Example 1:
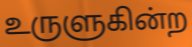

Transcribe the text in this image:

உருளுகின்ற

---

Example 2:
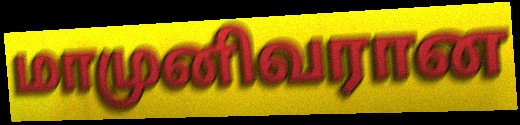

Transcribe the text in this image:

மாமுனிவரான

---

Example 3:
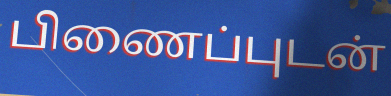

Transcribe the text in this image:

பிணைப்புடன்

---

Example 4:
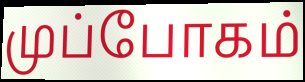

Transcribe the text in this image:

முப்போகம்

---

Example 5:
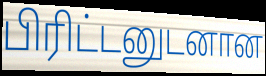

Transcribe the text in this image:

பிரிட்டனுடனான